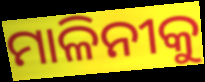
ମାଳିନୀକୁ